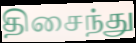
திசைந்து